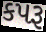
કપરૂ